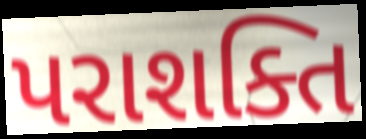
પરાશક્તિ